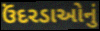
ઉંદરડાઓનું